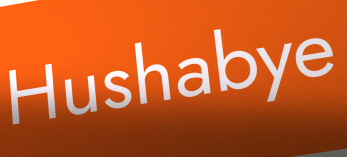
Hushabye